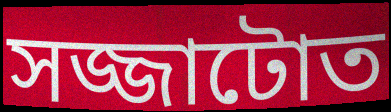
সজ্জাটোত